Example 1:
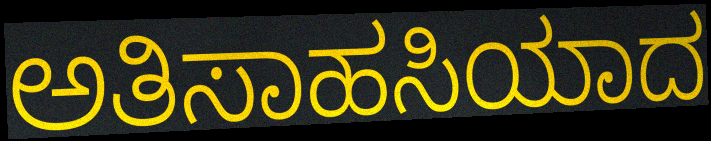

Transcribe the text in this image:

ಅತಿಸಾಹಸಿಯಾದ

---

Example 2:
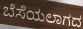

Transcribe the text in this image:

ಬೆಸೆಯಲಾಗದ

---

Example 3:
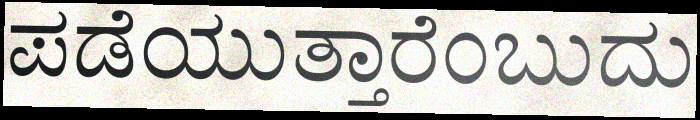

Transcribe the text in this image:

ಪಡೆಯುತ್ತಾರೆಂಬುದು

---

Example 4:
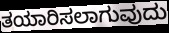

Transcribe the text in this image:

ತಯಾರಿಸಲಾಗುವುದು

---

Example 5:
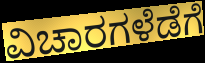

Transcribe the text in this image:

ವಿಚಾರಗಳೆಡೆಗೆ